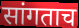
सांगताच